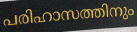
പരിഹാസത്തിനും